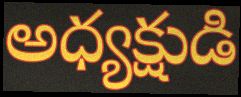
అధ్యక్షుడి